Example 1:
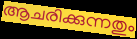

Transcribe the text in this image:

ആചരിക്കുന്നതും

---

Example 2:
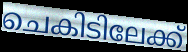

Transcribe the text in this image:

ചെകിടിലേക്ക്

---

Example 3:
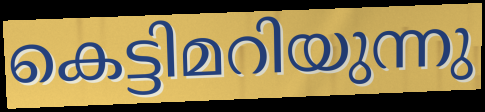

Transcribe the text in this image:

കെട്ടിമറിയുന്നു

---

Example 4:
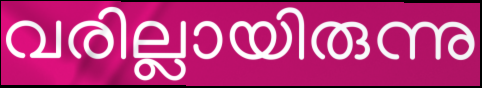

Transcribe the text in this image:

വരില്ലായിരുന്നു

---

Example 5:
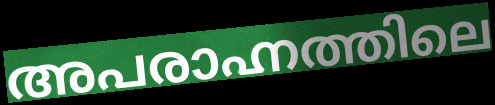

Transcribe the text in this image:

അപരാഹ്നത്തിലെ